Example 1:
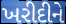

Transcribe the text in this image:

ખરીદીને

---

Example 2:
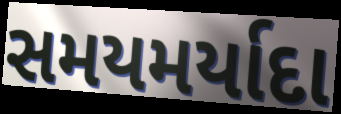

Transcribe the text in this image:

સમયમર્યાદા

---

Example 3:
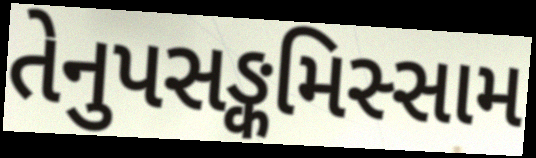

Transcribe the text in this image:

તેનુપસઙ્કમિસ્સામ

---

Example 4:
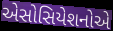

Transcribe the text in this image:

એસોસિયેશનોએ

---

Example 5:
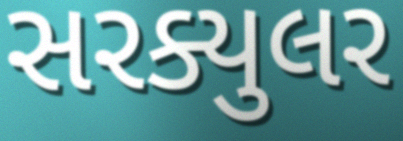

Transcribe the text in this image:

સરક્યુલર